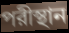
পরীস্থান